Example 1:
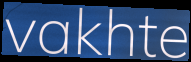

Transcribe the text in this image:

vakhte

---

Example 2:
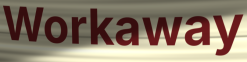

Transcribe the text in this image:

Workaway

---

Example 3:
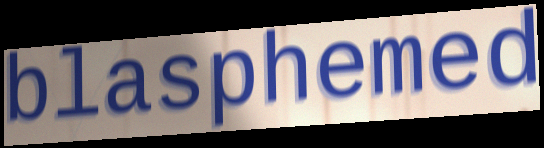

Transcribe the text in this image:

blasphemed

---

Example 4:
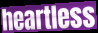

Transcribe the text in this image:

heartless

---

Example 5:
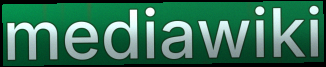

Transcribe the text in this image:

mediawiki